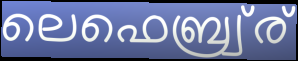
ലെഫെബ്ര്വ്ര്